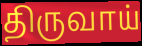
திருவாய்